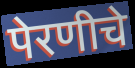
पेरणीचे